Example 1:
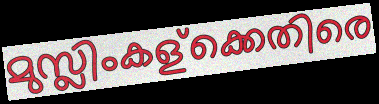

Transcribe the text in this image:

മുസ്ലിംകള്ക്കെതിരെ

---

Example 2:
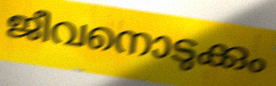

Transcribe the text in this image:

ജീവനൊടുക്കും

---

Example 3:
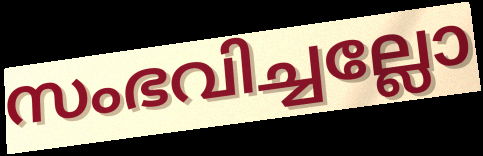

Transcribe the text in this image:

സംഭവിച്ചല്ലോ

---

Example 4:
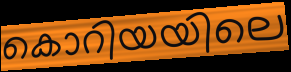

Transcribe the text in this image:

കൊറിയയിലെ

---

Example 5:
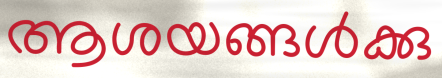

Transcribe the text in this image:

ആശയങ്ങൾക്കു